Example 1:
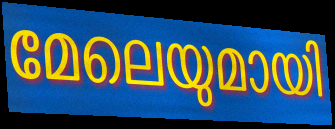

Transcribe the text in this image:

മേലെയുമായി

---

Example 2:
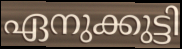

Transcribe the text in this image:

ഏനുക്കുട്ടി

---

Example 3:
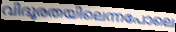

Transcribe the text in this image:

വിദൂരതയിലെന്നപോലെ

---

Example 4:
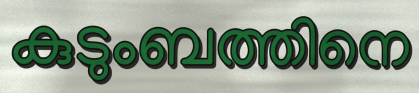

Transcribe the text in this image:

കുടുംബത്തിനെ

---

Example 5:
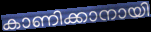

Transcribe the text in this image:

കാണിക്കാനായി